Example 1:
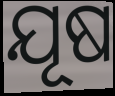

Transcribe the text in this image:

ଯୂଷ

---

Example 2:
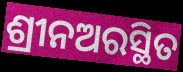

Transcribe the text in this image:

ଶ୍ରୀନଅରସ୍ଥିତ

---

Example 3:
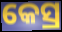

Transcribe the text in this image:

କେସ୍ର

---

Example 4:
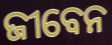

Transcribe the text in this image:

ଜୀବେନ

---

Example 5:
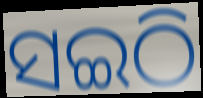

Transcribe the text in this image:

ସଇଠି